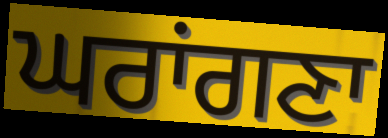
ਘਰਾਂਗਣਾ